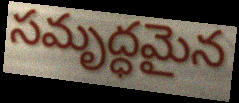
సమృద్ధమైన